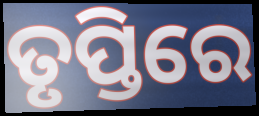
ତୃପ୍ତିରେ